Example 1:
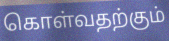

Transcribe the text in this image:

கொள்வதற்கும்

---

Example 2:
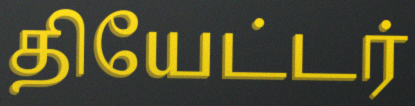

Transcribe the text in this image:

தியேட்டர்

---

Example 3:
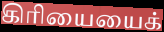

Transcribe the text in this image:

கிரியையைக்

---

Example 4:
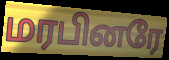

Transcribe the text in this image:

மரபினரே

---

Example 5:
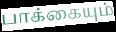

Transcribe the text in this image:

பாக்கையும்